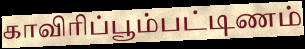
காவிரிப்பூம்பட்டிணம்